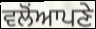
ਵਲੋਂਆਪਣੇ